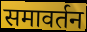
समावर्तन